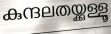
കുന്ദലതയ്ക്കുള്ളൂ